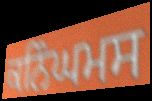
ਕਨਿੰਘਮਸ